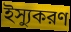
ইস্যুকরণ